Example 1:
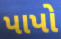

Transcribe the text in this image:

પાપો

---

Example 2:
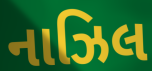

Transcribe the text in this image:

નાઝિલ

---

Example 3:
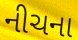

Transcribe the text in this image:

નીચના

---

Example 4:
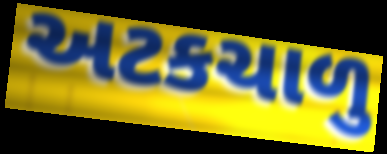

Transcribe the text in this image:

અટકચાળુ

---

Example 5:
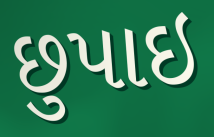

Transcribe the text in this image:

છુપાઇ